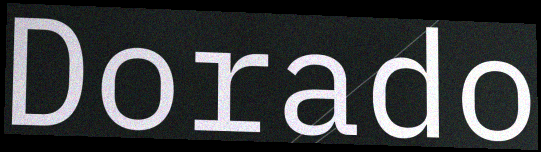
Dorado